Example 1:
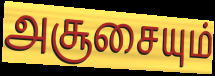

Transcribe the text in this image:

அசூசையும்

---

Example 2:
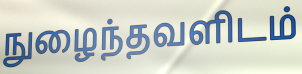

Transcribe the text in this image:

நுழைந்தவளிடம்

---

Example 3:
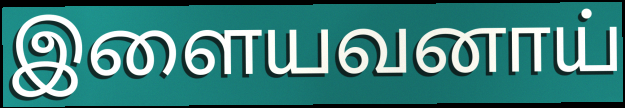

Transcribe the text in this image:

இளையவனாய்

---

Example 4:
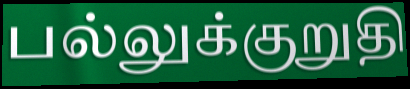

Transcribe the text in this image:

பல்லுக்குறுதி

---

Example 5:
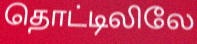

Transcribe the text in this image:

தொட்டிலிலே